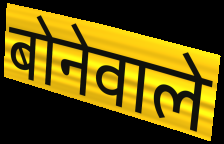
बोनेवाले